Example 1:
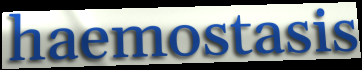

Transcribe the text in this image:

haemostasis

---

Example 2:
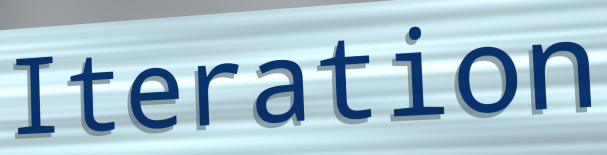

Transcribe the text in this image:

Iteration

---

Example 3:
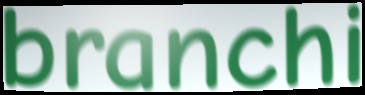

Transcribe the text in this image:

branchi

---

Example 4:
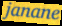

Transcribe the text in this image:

janane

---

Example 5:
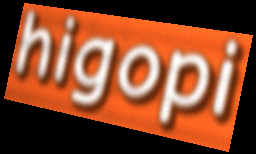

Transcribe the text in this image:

higopi